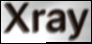
Xray